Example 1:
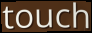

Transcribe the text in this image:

touch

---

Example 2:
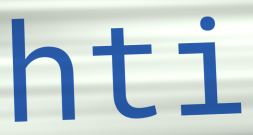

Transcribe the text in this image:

hti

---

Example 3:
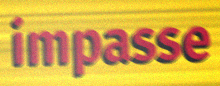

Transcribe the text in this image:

impasse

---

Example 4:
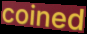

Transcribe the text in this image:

coined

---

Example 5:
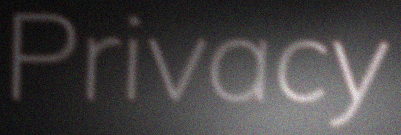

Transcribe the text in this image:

Privacy